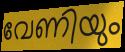
വേണിയും